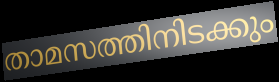
താമസത്തിനിടക്കും